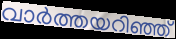
വാർത്തയറിഞ്ഞ്